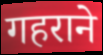
गहराने